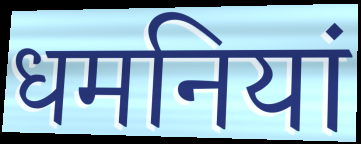
धमनियां